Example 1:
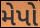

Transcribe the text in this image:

મેપો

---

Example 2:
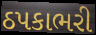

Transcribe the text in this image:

ઠપકાભરી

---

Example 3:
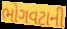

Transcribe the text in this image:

ભોગવટાની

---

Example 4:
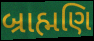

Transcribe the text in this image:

બ્રાહ્મણિ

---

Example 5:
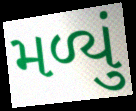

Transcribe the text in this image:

મળ્યું